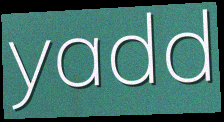
yadd